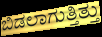
ಬಿಡಲಾಗುತ್ತಿತ್ತು